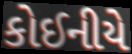
કોઈનીયે